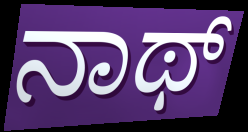
ನಾಥ್